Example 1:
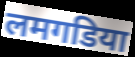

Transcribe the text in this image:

लमगडिया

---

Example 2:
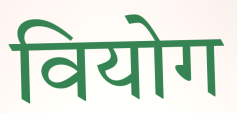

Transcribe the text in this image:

वियोग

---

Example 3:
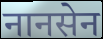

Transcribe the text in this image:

नानसेन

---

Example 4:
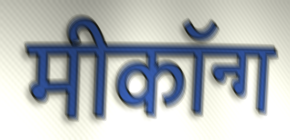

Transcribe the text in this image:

मीकॉन्ग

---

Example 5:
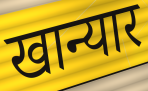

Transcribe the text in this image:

खान्यार